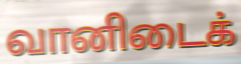
வானிடைக்